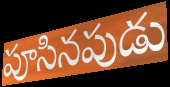
పూసినపుడు